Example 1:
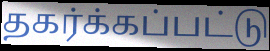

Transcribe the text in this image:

தகர்க்கப்பட்டு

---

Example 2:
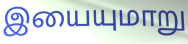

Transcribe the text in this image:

இயையுமாறு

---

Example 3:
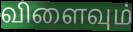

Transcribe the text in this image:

விளைவும்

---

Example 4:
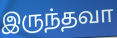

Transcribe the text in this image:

இருந்தவா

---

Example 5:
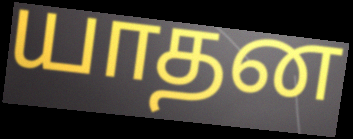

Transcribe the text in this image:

யாதன